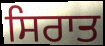
ਸਿਰਾਤ